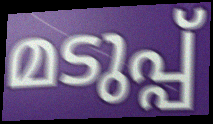
മടുപ്പ്